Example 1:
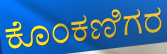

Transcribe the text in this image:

ಕೊಂಕಣಿಗರ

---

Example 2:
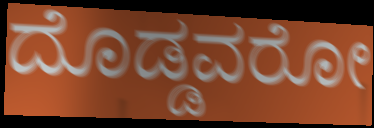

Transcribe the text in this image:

ದೊಡ್ಡವರೋ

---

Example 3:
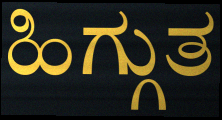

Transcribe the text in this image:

ಹಿಗ್ಗುತ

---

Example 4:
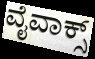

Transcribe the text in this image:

ವೈವಾಕ್ಸ್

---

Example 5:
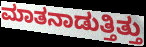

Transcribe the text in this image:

ಮಾತನಾಡುತ್ತಿತ್ತು